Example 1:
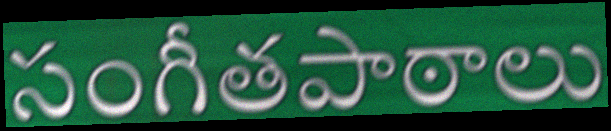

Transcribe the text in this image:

సంగీతపాఠాలు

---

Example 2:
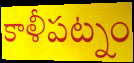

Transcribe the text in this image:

కాళీపట్నం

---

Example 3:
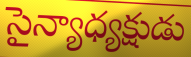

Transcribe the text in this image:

సైన్యాధ్యక్షుడు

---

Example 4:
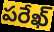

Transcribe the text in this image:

పరేఖ్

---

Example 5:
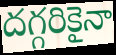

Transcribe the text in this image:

దగ్గరికైనా